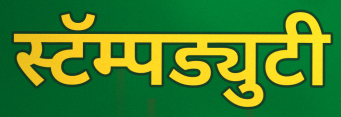
स्टॅम्पड्युटी